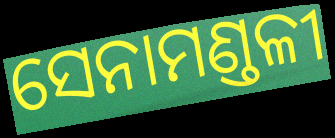
ସେନାମଣ୍ଡଳୀ